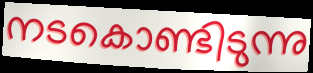
നടകൊണ്ടിടുന്നു